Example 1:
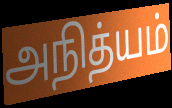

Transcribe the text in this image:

அநித்யம்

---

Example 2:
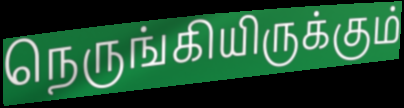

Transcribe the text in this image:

நெருங்கியிருக்கும்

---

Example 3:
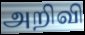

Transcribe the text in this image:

அறிவி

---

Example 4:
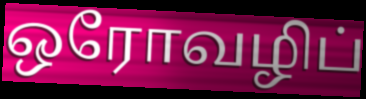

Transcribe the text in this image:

ஒரோவழிப்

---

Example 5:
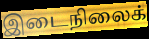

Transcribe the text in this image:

இடைநிலைக்